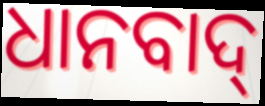
ଧାନବାଦ୍